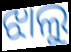
ଝାଲୁ